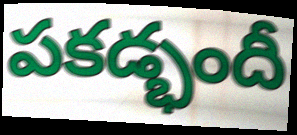
పకడ్భందీ